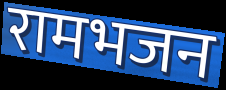
रामभजन